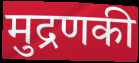
मुद्रणकी